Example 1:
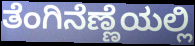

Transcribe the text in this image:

ತೆಂಗಿನೆಣ್ಣೆಯಲ್ಲಿ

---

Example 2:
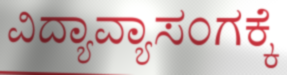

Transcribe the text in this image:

ವಿದ್ಯಾವ್ಯಾಸಂಗಕ್ಕೆ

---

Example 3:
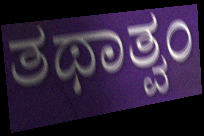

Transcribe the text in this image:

ತಥಾತ್ವಂ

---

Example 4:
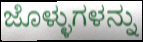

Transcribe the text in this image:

ಜೊಳ್ಳುಗಳನ್ನು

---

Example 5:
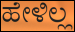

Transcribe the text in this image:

ಹೇಳಿಲ್ಲ